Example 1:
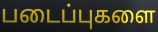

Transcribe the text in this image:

படைப்புகளை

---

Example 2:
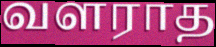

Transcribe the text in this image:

வளராத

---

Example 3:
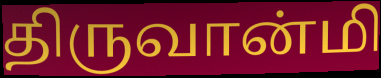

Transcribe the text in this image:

திருவான்மி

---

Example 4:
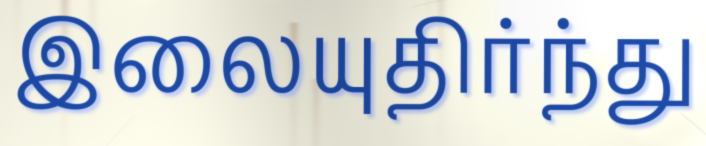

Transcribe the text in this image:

இலையுதிர்ந்து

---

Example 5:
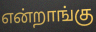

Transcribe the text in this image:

என்றாங்கு